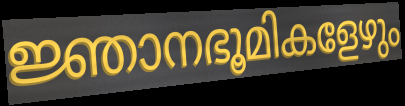
ജ്ഞാനഭൂമികളേഴും